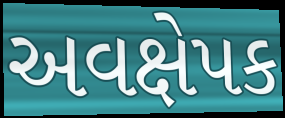
અવક્ષેપક